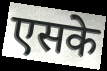
एसके